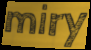
miry